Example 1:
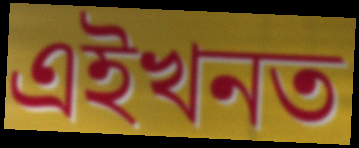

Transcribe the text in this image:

এইখনত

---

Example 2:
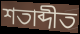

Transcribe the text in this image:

শতাব্দীত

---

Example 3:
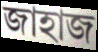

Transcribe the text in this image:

জাহাজ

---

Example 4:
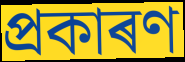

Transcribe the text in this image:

প্ৰকাৰণ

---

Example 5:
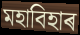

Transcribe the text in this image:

মহাবিহাৰ